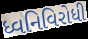
ધ્વનિવિરોધી